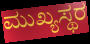
ಮುಖ್ಯಸ್ಥರ